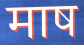
माष